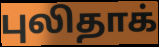
புலிதாக்